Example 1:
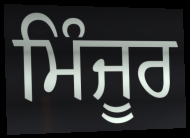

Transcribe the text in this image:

ਮਿੰਜੂਰ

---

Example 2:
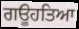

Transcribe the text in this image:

ਗਊਹਤਿਆ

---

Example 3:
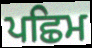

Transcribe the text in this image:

ਪਛਿਮ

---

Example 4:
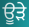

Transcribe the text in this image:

ਊੜੇ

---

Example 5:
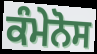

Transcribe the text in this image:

ਕੰਮੇਨੋਸ